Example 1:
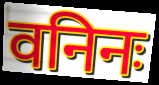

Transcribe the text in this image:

वनिनः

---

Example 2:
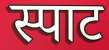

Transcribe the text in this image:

स्पाट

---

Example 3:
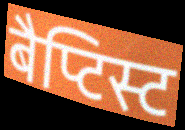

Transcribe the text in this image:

बैप्टिस्ट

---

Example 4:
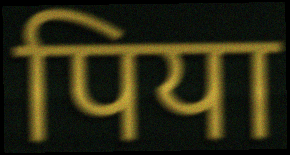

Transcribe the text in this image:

पिया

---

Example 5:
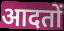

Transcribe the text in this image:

आदतों